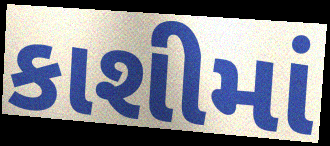
કાશીમાં